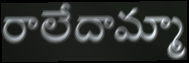
రాలేదామ్మా